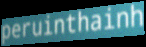
peruinthainh